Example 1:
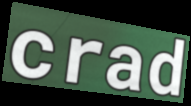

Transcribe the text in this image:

crad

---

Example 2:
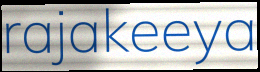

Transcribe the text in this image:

rajakeeya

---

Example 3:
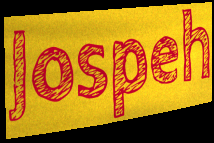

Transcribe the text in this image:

Jospeh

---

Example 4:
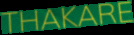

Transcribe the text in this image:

THAKARE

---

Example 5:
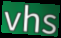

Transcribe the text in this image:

vhs